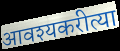
आवश्यकरीत्या